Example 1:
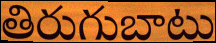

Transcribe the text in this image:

తిరుగుబాటు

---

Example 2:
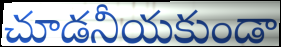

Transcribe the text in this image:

చూడనీయకుండా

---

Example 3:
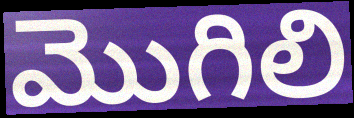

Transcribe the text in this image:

మొగిలి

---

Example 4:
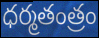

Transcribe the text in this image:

ధర్మతంత్రం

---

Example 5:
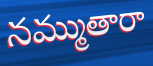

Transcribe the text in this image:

నమ్ముతారా